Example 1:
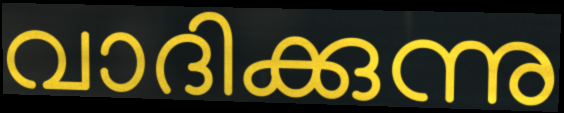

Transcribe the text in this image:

വാദിക്കുന്നു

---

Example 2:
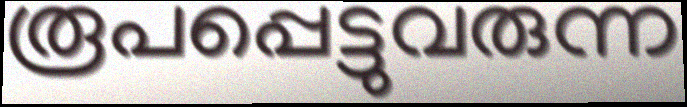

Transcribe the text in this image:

രൂപപ്പെട്ടുവരുന്ന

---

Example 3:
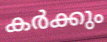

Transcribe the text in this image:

കർക്കും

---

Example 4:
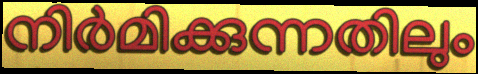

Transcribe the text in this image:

നിർമിക്കുന്നതിലും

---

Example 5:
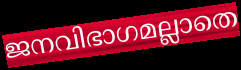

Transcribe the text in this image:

ജനവിഭാഗമല്ലാതെ